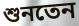
শুনতেন